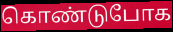
கொண்டுபோக